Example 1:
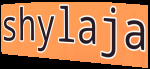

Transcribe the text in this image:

shylaja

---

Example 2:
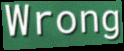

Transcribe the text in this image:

Wrong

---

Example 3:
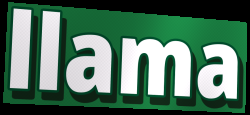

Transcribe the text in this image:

llama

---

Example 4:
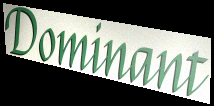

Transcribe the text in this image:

Dominant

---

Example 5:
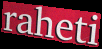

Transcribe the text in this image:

raheti